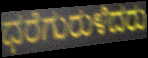
ಧರೆಗುರುಳಿದರು